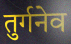
तुर्गनेव